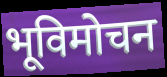
भूविमोचन